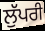
ਲੁੱਪਰੀ